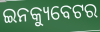
ଇନକ୍ୟୁବେଟର